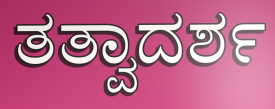
ತತ್ವಾದರ್ಶ